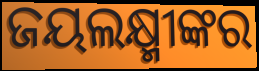
ଜୟଲକ୍ଷ୍ମୀଙ୍କର